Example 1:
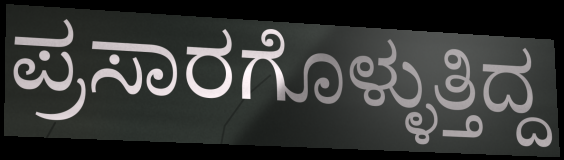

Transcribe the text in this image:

ಪ್ರಸಾರಗೊಳ್ಳುತ್ತಿದ್ದ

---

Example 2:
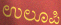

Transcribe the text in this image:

ಉಲೂಪಿ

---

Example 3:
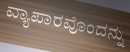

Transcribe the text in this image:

ವ್ಯಾಪಾರವೊಂದನ್ನು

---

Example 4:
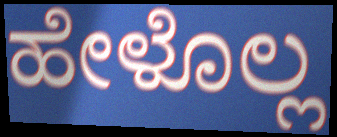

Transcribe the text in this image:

ಹೇಳೊಲ್ಲ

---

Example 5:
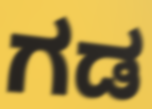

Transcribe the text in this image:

ಗಡ